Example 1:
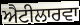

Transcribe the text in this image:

ਐਟੀਲਾਰਵਾ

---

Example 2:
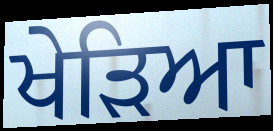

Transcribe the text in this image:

ਖੇੜਿਆ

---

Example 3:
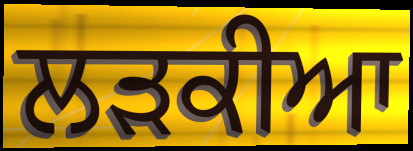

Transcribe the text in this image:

ਲੜਕੀਆ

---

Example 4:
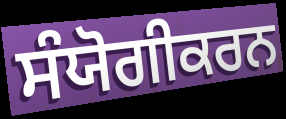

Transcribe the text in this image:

ਸੰਯੋਗੀਕਰਨ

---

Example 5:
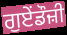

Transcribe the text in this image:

ਗੁਏਂਡੌਜ਼ੀ